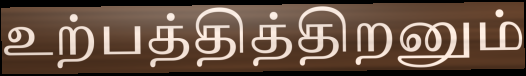
உற்பத்தித்திறனும்